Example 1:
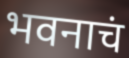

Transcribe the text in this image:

भवनाचं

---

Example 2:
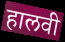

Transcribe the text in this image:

हालवी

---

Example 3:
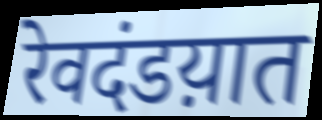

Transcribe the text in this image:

रेवदंडय़ात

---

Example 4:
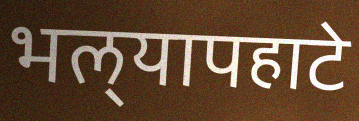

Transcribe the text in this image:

भल्यापहाटे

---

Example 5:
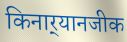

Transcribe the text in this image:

किनार्यानजीक